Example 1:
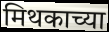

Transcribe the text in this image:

मिथकाच्या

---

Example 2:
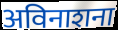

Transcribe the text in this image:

अविनाशना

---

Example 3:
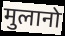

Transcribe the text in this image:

मुलानो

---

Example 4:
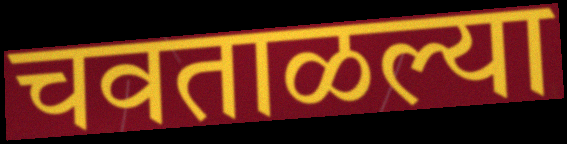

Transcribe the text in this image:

चवताळल्या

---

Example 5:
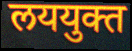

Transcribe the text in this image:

लययुक्त